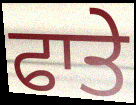
ਫਾਤੇ